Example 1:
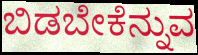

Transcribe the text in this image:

ಬಿಡಬೇಕೆನ್ನುವ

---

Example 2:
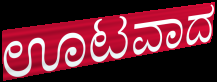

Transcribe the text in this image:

ಊಟವಾದ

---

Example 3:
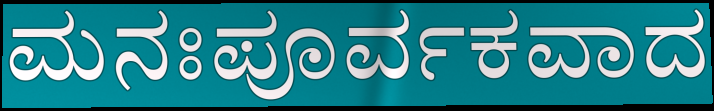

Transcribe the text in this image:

ಮನಃಪೂರ್ವಕವಾದ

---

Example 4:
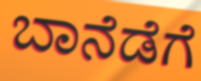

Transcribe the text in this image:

ಬಾನೆಡೆಗೆ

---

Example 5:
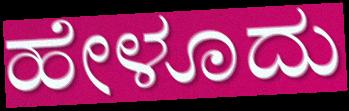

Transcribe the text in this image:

ಹೇಳೂದು